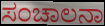
ಸಂಚಾಲನಾ